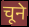
चूने